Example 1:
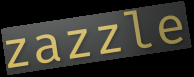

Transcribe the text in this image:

zazzle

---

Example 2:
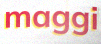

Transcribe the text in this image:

maggi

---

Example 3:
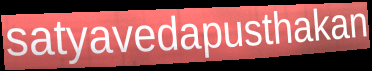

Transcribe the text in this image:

satyavedapusthakan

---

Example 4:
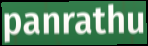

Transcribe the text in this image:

panrathu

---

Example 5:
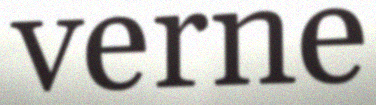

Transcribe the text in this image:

verne